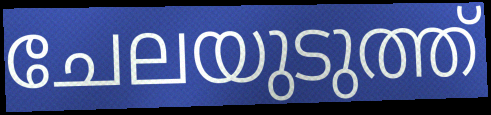
ചേലയുടുത്ത്